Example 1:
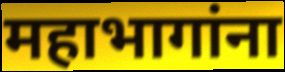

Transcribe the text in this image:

महाभागांना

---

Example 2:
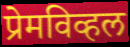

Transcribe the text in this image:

प्रेमविव्हल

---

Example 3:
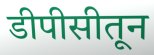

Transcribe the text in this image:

डीपीसीतून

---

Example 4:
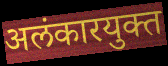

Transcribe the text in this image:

अलंकारयुक्त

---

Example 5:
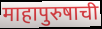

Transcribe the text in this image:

माहापुरुषाची